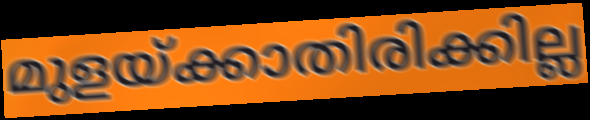
മുളയ്ക്കാതിരിക്കില്ല